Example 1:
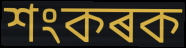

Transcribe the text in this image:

শংকৰক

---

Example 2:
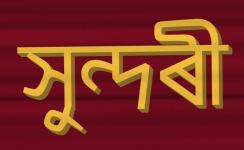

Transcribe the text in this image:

সুন্দৰী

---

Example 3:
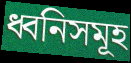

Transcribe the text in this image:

ধ্বনিসমূহ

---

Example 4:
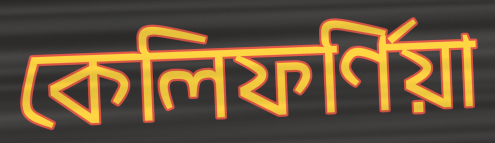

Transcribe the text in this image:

কেলিফৰ্ণিয়া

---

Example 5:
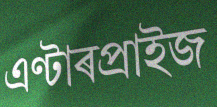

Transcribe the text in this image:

এণ্টাৰপ্ৰাইজ